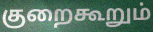
குறைகூறும்